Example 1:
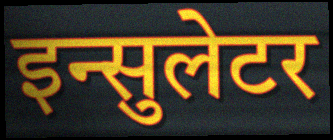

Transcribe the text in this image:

इन्सुलेटर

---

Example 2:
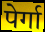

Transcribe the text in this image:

पेर्गा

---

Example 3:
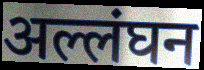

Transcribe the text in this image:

अल्लंघन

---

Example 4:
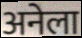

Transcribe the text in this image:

अनेला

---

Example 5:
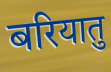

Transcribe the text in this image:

बरियातु